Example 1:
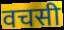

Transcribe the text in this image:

वचसी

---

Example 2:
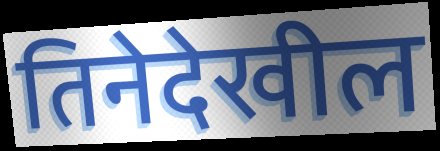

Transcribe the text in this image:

तिनेदेखील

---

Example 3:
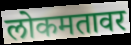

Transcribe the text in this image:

लोकमतावर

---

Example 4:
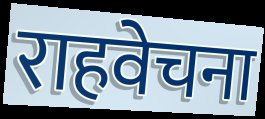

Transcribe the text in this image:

राहवेचना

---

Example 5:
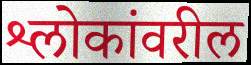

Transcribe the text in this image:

श्लोकांवरील